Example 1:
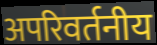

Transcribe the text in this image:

अपरिवर्तनीय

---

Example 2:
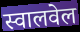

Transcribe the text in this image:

स्वालवेल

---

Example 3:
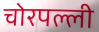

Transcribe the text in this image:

चोरपल्ली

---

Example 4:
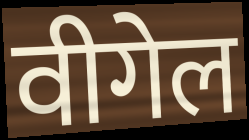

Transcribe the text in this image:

वीगेल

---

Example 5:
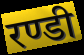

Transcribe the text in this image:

रण्डी